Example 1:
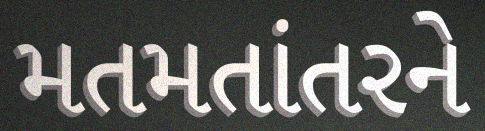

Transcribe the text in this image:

મતમતાંતરને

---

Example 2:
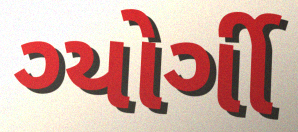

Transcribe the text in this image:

ગ્યોર્ગી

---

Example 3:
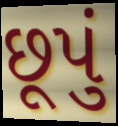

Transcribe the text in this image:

છૂપું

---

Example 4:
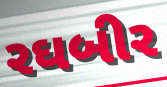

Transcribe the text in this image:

રઘબીર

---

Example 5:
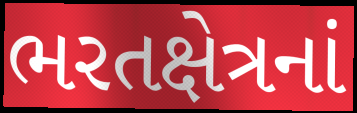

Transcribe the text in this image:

ભરતક્ષેત્રનાં